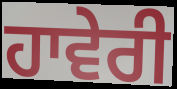
ਹਾਵੇਰੀ